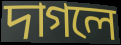
দাগলে